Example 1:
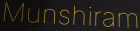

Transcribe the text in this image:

Munshiram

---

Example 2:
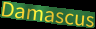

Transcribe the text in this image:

Damascus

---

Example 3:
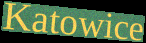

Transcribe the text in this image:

Katowice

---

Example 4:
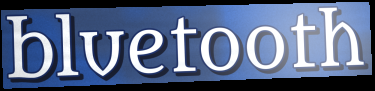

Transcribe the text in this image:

bluetooth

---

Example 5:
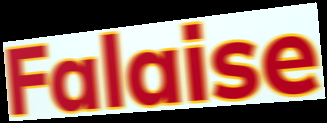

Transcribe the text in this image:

Falaise